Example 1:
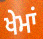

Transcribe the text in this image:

ਖੇਮਾਂ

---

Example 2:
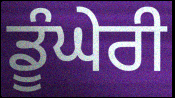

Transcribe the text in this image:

ਡੂੰਘੇਰੀ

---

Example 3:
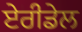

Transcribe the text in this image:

ਏਰੀਡੇਲ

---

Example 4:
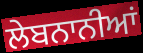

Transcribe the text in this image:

ਲੇਬਨਾਨੀਆਂ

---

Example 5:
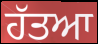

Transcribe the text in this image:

ਹੱਤਆ